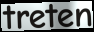
treten